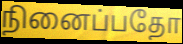
நினைப்பதோ